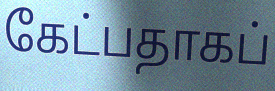
கேட்பதாகப்